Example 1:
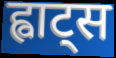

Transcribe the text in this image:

ह्वाट्स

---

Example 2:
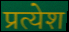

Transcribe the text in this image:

प्रत्येश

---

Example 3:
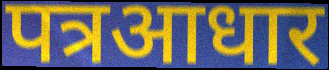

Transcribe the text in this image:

पत्रआधार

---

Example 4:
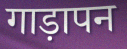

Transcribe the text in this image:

गाड़ापन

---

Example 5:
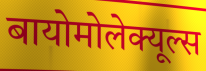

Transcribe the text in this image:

बायोमोलेक्यूल्स